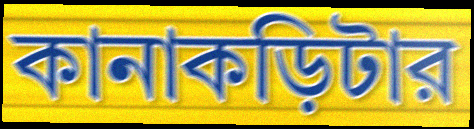
কানাকড়িটার